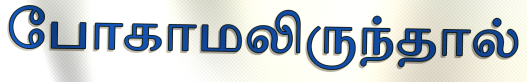
போகாமலிருந்தால்